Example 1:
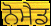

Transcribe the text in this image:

ਨੋਮੈਡ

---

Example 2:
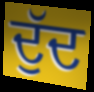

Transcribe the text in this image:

ਦੁੱਦ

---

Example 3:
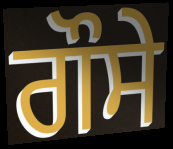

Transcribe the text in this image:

ਗੌਸੇ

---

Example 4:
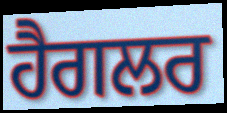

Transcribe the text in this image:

ਹੈਗਲਰ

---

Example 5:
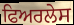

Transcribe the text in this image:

ਫਿਅਰਲੇਸ